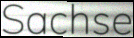
Sachse